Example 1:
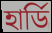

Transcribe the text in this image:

হাৰ্ডি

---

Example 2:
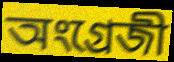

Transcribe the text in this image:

অংগ্ৰেজী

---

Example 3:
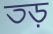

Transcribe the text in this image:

তড়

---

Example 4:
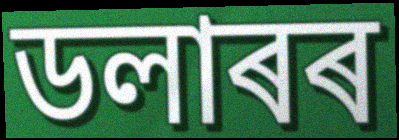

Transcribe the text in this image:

ডলাৰৰ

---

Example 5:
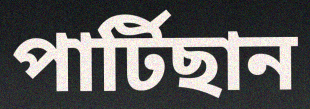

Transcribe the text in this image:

পাৰ্টিছান